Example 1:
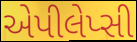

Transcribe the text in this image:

એપીલેપ્સી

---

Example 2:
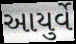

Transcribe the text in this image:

આયુર્વે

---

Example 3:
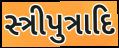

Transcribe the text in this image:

સ્ત્રીપુત્રાદિ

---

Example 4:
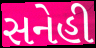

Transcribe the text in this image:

સનેહી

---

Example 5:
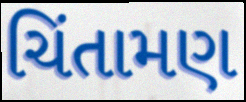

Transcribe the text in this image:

ચિંતામણ